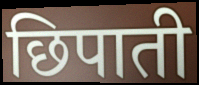
छिपाती